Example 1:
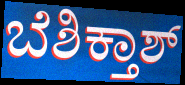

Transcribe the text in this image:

ಬೆಶಿಕ್ತಾಶ್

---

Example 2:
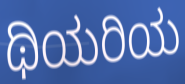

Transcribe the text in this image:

ಥಿಯರಿಯ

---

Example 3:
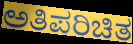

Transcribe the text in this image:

ಅತಿಪರಿಚಿತ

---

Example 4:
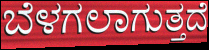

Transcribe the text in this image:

ಬೆಳಗಲಾಗುತ್ತದೆ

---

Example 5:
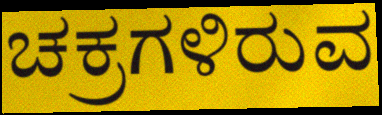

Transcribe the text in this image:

ಚಕ್ರಗಳಿರುವ